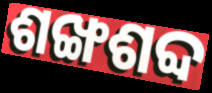
ଶଙ୍ଖଶବ୍ଦ